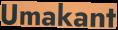
Umakant